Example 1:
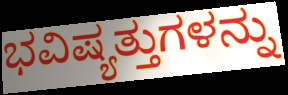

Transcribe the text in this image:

ಭವಿಷ್ಯತ್ತುಗಳನ್ನು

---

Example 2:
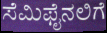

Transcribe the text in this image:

ಸೆಮಿಫೈನಲಿಗೆ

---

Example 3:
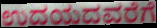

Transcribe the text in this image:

ಉದಯದವರೆಗೆ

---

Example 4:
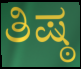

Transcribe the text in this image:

ತಿಷ್ಠ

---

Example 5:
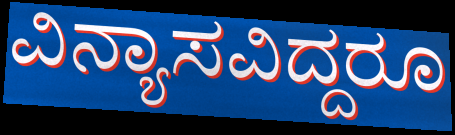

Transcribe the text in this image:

ವಿನ್ಯಾಸವಿದ್ದರೂ